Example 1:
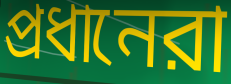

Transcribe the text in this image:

প্রধানেরা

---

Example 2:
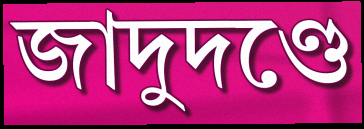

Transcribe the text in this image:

জাদুদণ্ডে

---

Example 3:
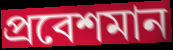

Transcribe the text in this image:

প্রবেশমান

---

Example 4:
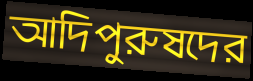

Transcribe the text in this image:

আদিপুরুষদের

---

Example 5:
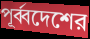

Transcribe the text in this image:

পূর্ব্বদেশের